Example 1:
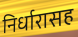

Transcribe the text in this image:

निर्धारासह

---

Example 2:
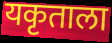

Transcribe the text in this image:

यकृताला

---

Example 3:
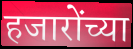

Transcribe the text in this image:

हजारोंच्या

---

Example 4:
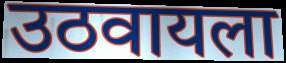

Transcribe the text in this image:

उठवायला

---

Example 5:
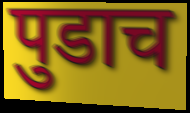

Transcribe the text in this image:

पुडाच